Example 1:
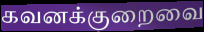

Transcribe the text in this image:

கவனக்குறைவை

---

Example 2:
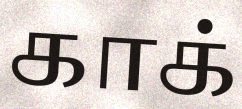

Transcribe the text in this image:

காக்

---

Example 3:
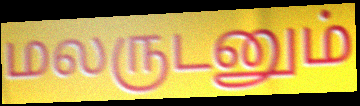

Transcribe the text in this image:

மலருடனும்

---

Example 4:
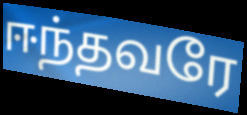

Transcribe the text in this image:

ஈந்தவரே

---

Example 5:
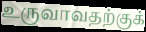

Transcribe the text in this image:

உருவாவதற்குக்